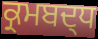
ਕ੍ਰਮਬਦ੍ਧ